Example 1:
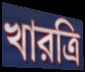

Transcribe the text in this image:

খারত্রি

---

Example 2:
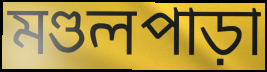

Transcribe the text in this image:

মণ্ডলপাড়া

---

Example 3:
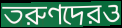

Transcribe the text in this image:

তরুণদেরও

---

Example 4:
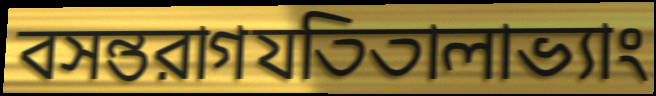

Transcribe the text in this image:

বসন্তরাগযতিতালাভ্যাং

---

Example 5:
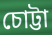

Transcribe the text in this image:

চোট্টা